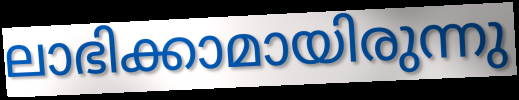
ലാഭിക്കാമായിരുന്നു